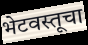
भेटवस्तूचा